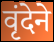
वृंदेने